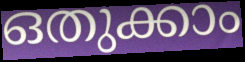
ഒതുക്കാം